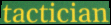
tactician